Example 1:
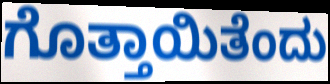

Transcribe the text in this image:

ಗೊತ್ತಾಯಿತೆಂದು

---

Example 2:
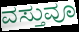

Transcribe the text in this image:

ವಸ್ತುವೂ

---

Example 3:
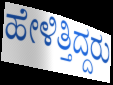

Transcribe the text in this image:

ಹೇಳಿತ್ತಿದ್ದರು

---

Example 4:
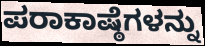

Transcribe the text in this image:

ಪರಾಕಾಷ್ಠೆಗಳನ್ನು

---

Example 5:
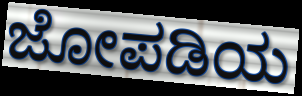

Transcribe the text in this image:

ಜೋಪಡಿಯ